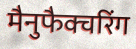
मैनुफैक्चरिंग